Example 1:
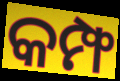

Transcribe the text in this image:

କମ୍ଫ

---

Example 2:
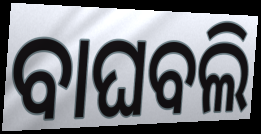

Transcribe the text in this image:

ବାଘବଲି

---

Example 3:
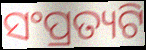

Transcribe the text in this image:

ସଂପ୍ରତ୍ୟଟି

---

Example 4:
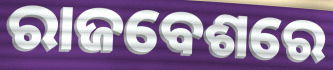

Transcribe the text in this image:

ରାଜବେଶରେ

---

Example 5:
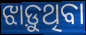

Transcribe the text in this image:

ଝାଡ଼ୁଥିବା